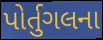
પોર્તુગલના